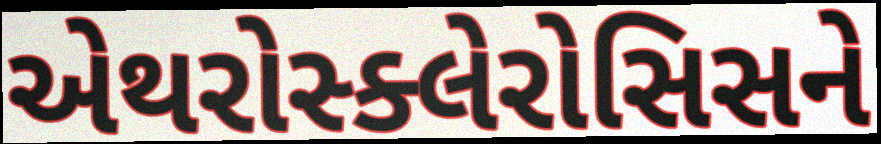
એથરોસ્ક્લેરોસિસને